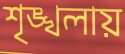
শৃঙ্খলায়